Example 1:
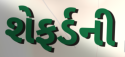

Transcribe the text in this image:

શેફર્ડની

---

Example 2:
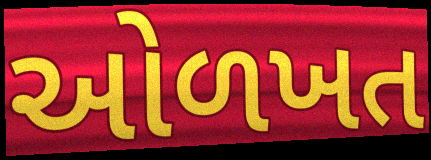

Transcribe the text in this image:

ઓળખત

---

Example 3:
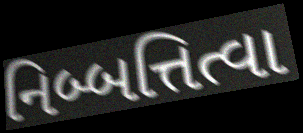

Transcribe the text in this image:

નિબ્બત્તિત્વા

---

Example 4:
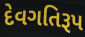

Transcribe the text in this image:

દેવગતિરૂપ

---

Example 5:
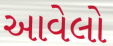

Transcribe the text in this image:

આવેલો